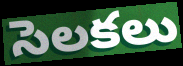
సెలకలు